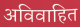
अविवाहित